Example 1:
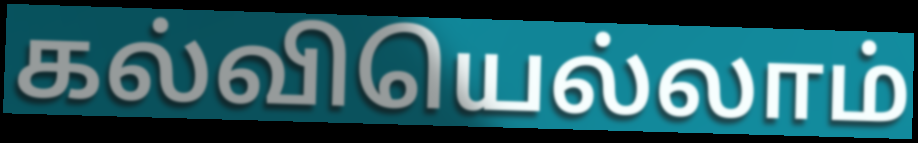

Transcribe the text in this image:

கல்வியெல்லாம்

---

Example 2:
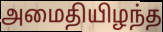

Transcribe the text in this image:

அமைதியிழந்த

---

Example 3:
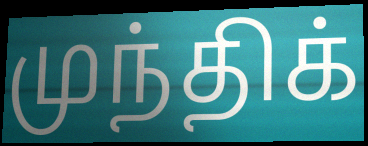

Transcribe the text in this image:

முந்திக்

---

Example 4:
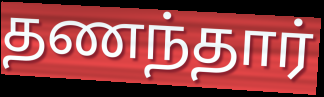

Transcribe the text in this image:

தணந்தார்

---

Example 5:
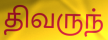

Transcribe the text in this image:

திவருந்